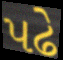
પઢે